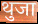
थुजा